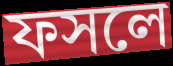
ফসলে